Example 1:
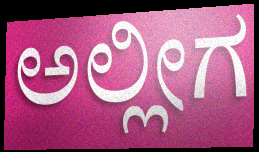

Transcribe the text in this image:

ಅಲ್ಲೀಗ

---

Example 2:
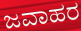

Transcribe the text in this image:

ಜವಾಹರ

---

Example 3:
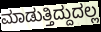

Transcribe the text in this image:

ಮಾಡುತ್ತಿದ್ದುದಲ್ಲ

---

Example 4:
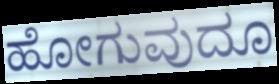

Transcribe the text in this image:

ಹೋಗುವುದೂ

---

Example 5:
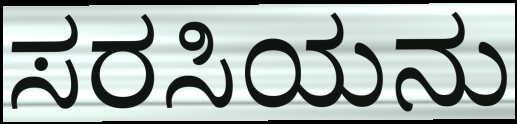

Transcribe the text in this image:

ಸರಸಿಯನು